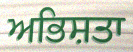
ਅਭਿਸ਼ਤਾ